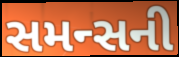
સમન્સની